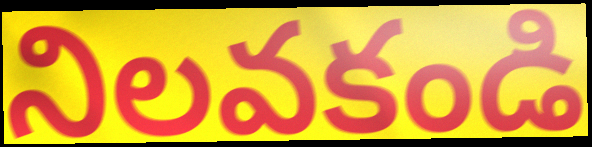
నిలవకండి